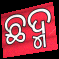
ଛଦ୍ମ